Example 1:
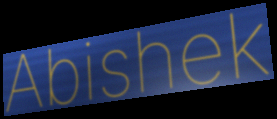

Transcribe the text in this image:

Abishek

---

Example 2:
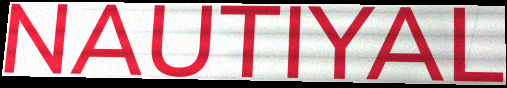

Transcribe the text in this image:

NAUTIYAL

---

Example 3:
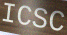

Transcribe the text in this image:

ICSC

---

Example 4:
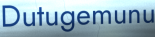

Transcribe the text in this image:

Dutugemunu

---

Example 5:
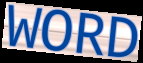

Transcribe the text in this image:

WORD